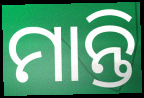
ମାନ୍ତି